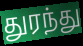
துரந்து